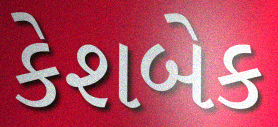
કેશબેક